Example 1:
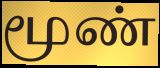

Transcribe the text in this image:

மூண்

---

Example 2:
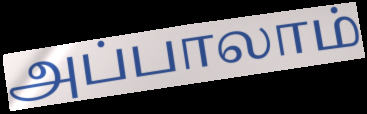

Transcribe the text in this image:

அப்பாலாம்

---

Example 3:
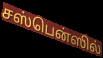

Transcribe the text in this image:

சஸ்பென்ஸில்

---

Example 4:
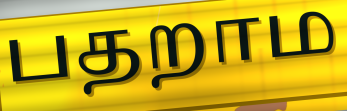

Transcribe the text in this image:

பதறாம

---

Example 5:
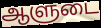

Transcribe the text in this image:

ஆளுடை